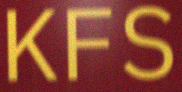
KFS